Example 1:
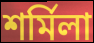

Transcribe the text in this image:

শৰ্মিলা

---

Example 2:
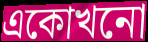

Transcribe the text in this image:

একোখনো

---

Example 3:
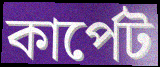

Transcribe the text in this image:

কাৰ্পেট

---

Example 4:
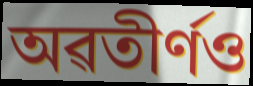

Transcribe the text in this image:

অৱতীৰ্ণও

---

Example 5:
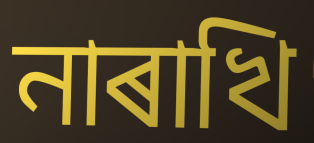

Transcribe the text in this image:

নাৰাখি